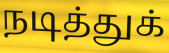
நடித்துக்